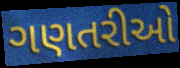
ગણતરીઓ